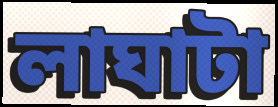
লাঘাটা